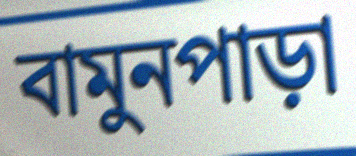
বামুনপাড়া